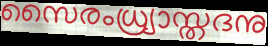
സൈരംധ്ര്യാസ്തദനു